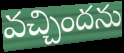
వచ్చిందను